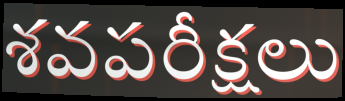
శవపరీక్షలు